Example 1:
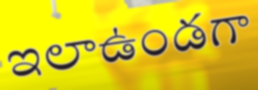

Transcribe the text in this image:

ఇలాఉండగా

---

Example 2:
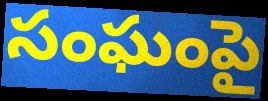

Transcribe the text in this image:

సంఘంపై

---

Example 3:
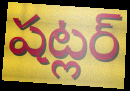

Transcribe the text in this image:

షట్లర్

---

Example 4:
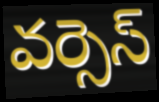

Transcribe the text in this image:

వర్సెస్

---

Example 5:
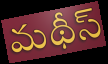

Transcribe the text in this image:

మథీస్